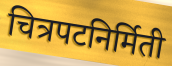
चित्रपटनिर्मिती